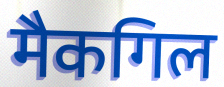
मैकगिल